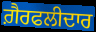
ਗ਼ੈਰਫਲੀਦਾਰ